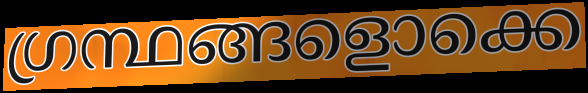
ഗ്രന്ഥങ്ങളൊക്കെ